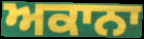
ਅਕਾਨਾ